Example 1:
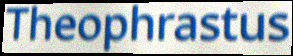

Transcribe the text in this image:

Theophrastus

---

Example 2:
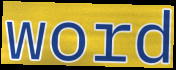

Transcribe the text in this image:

word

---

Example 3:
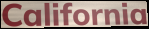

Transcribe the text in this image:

California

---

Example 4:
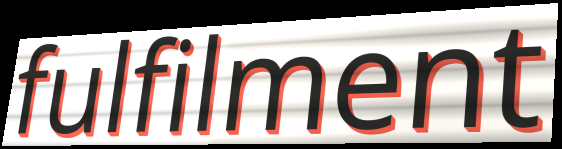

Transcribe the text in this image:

fulfilment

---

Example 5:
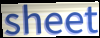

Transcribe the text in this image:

sheet